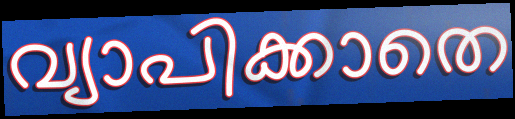
വ്യാപിക്കാതെ